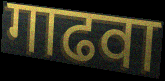
गाढवा